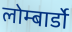
लोम्बार्डो